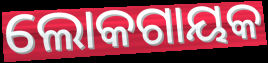
ଲୋକଗାୟକ